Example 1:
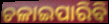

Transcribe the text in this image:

ଚଳାଇପାରିବି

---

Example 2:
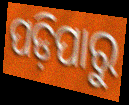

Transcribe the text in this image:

ପଡ଼ିପାରୁ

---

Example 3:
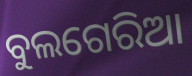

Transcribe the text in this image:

ବୁଲଗେରିଆ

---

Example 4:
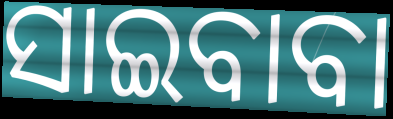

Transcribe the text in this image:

ସାଇବାବା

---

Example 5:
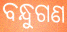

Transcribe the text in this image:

ବନ୍ଧୁଗଣ